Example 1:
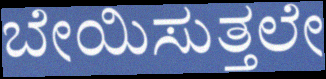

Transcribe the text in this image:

ಬೇಯಿಸುತ್ತಲೇ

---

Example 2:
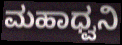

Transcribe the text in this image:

ಮಹಾಧ್ವನಿ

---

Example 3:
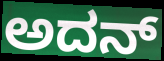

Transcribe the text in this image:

ಅದನ್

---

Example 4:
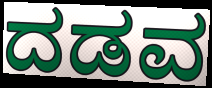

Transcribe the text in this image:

ದಡವ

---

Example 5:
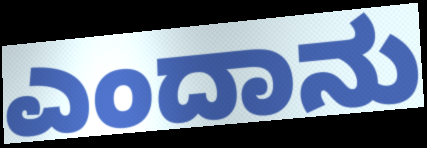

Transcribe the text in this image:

ಎಂದಾನು